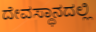
ದೇವಸ್ಥಾನದಲ್ಲಿ